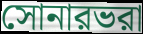
সোনারভরা